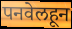
पनवेलहून